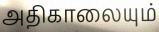
அதிகாலையும்